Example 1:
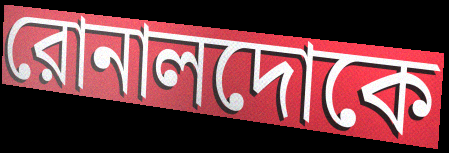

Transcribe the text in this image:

রোনালদোকে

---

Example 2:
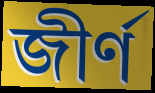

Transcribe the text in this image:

জীর্ণ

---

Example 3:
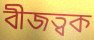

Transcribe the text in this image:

বীজত্বক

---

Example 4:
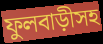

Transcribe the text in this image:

ফুলবাড়ীসহ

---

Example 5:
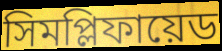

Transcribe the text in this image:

সিমপ্লিফায়েড